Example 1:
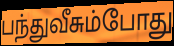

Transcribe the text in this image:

பந்துவீசும்போது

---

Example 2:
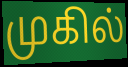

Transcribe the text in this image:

முகில்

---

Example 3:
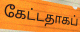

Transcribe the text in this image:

கேட்டதாகப்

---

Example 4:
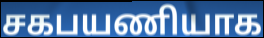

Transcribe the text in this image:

சகபயணியாக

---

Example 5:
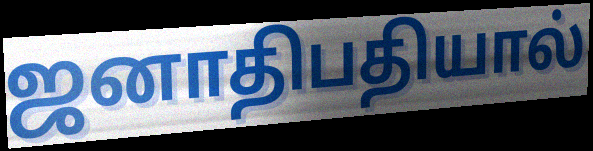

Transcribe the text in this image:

ஜனாதிபதியால்